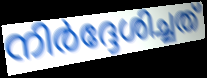
നിർദ്ദേശിച്ചത്